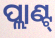
ପ୍ଲାଣ୍ଟ୍